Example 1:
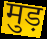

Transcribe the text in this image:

मुड़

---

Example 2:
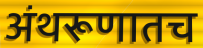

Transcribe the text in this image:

अंथरूणातच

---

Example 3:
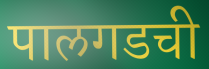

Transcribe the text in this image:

पालगडची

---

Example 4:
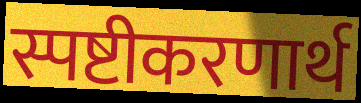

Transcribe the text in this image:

स्पष्टीकरणार्थ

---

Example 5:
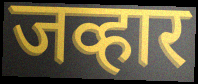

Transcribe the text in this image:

जव्हार